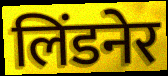
लिंडनेर